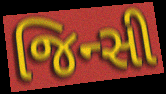
જિન્સી